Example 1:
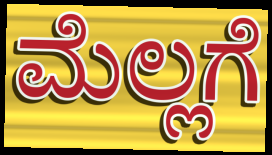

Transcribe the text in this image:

ಮೆಲ್ಲಗೆ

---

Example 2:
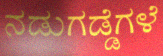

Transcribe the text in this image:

ನಡುಗಡ್ಡೆಗಳೆ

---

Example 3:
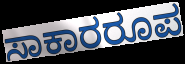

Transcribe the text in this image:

ಸಾಕಾರರೂಪ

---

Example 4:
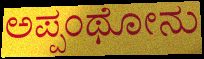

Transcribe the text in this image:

ಅಪ್ಪಂಥೋನು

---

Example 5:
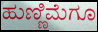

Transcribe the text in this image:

ಹುಣ್ಣಿಮೆಗೂ